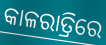
କାଳରାତ୍ରିରେ